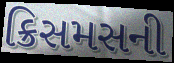
ક્રિસમસની